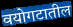
वयोगटातील